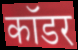
कॉडर